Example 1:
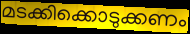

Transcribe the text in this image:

മടക്കിക്കൊടുക്കണം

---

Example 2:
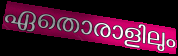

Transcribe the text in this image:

ഏതൊരാളിലും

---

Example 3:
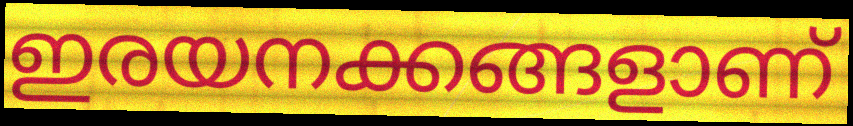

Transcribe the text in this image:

ഇരയനക്കങ്ങളാണ്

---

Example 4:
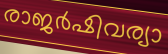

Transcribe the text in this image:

രാജർഷിവര്യാ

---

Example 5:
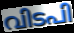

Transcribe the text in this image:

വിടപി